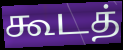
கூடத்